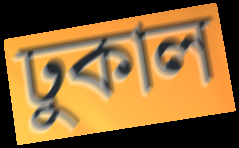
ঢুকাল